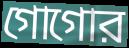
গোগোর